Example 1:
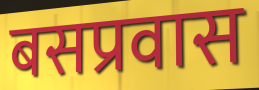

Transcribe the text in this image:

बसप्रवास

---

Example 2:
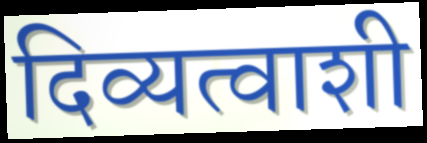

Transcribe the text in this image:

दिव्यत्वाशी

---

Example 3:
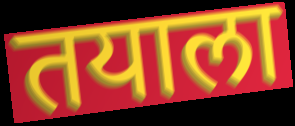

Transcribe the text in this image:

तयाला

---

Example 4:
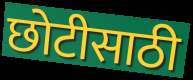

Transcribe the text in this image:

छोटीसाठी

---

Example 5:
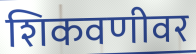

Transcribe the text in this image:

शिकवणीवर